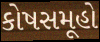
કોષસમૂહો